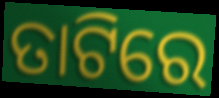
ତାଟିରେ